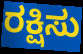
ರಕ್ಷಿಸು